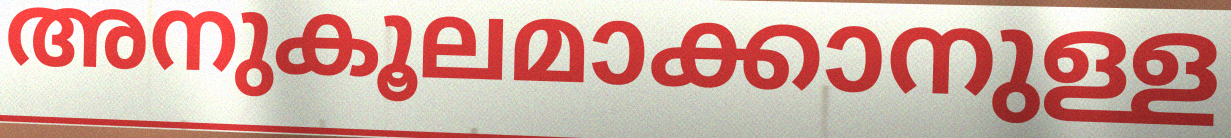
അനുകൂലമാക്കാനുള്ള